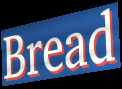
Bread